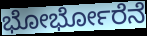
ಭೋರ್ಭೋರೆನೆ